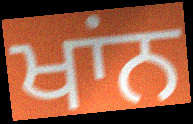
ਖਾਂਨ